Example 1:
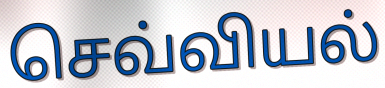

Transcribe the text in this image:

செவ்வியல்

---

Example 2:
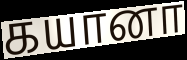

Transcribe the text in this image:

கயானா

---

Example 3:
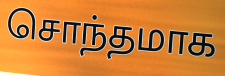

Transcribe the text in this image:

சொந்தமாக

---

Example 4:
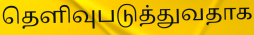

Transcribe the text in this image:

தெளிவுபடுத்துவதாக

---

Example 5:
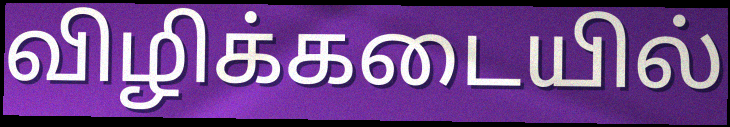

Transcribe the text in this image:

விழிக்கடையில்